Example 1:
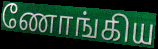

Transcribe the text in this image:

ணோங்கிய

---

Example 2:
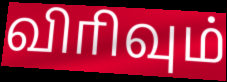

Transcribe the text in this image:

விரிவும்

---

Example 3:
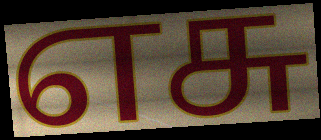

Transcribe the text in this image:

எசு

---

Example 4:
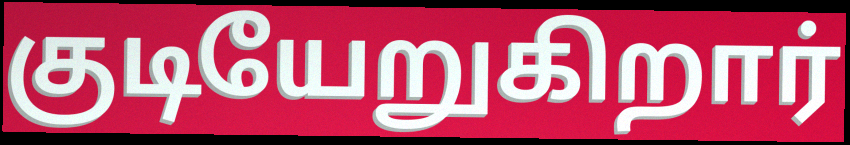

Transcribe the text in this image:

குடியேறுகிறார்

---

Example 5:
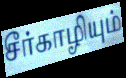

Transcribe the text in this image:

சீர்காழியும்